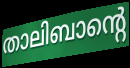
താലിബാന്റെ